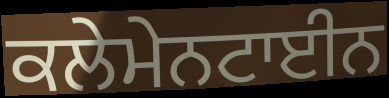
ਕਲੇਮੇਨਟਾਈਨ